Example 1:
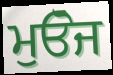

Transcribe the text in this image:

ਮੁਓੋਜ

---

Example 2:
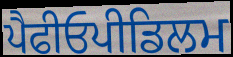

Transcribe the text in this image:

ਪੈਫੀਓਪੀਡਿਲਮ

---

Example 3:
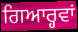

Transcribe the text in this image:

ਗਿਆਰ੍ਹਵਾਂ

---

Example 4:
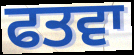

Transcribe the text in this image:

ਫਤਵਾ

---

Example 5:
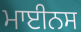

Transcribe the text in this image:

ਮਾਈਨਸ